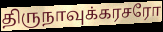
திருநாவுக்கரசரோ